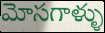
మోసగాళ్ళు